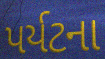
પર્યટના